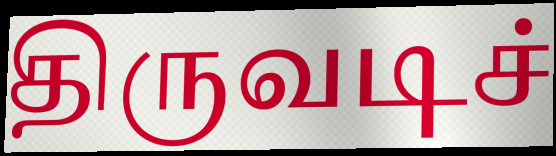
திருவடிச்